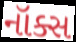
નૉક્સ